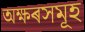
অক্ষৰসমূহ